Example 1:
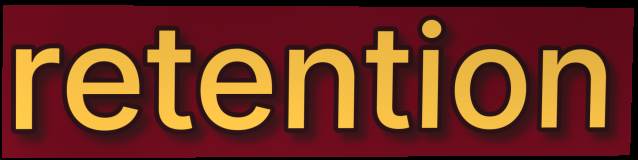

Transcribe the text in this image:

retention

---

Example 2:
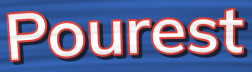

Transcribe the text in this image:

Pourest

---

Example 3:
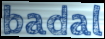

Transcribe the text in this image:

badal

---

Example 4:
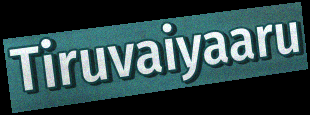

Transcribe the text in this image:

Tiruvaiyaaru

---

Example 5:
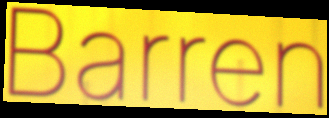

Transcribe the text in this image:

Barren